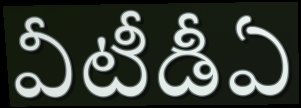
వీటీడీఏ